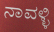
ನಾವಳ್ಳಿ